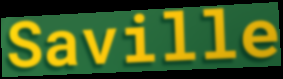
Saville